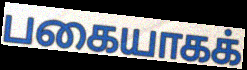
பகையாகக்